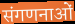
संगणनाओं